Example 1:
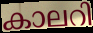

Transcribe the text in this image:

കാലറി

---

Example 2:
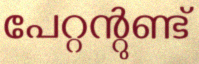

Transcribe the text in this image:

പേറ്റന്റുണ്ട്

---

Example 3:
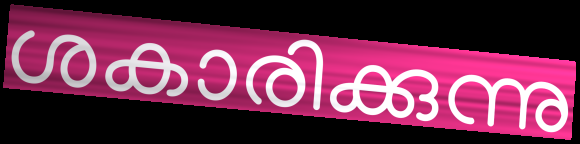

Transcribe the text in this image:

ശകാരിക്കുന്നു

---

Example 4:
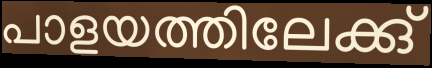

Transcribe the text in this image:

പാളയത്തിലേക്കു്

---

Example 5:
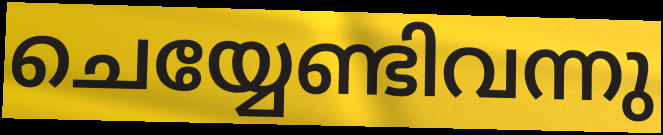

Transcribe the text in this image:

ചെയ്യേണ്ടിവന്നു